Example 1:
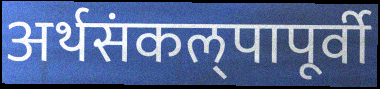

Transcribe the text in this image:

अर्थसंकल्पापूर्वी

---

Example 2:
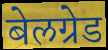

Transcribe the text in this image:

बेलग्रेड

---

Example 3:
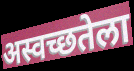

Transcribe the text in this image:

अस्वच्छतेला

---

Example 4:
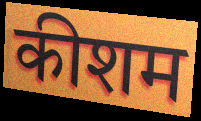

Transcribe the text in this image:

कीशम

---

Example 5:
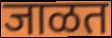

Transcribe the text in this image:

जाळत